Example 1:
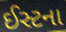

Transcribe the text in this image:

ઈસ્ટના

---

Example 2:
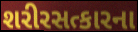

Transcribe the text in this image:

શરીરસત્કારના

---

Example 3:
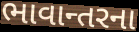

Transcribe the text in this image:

ભાવાન્તરના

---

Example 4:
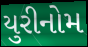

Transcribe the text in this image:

યુરીનોમ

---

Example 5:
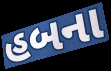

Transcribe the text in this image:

હબના